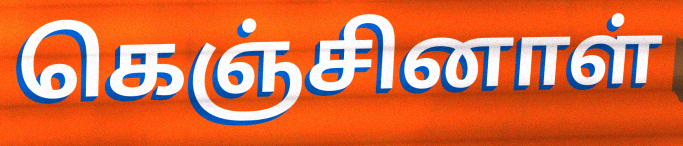
கெஞ்சினாள்